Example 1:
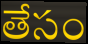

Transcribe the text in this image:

తేసం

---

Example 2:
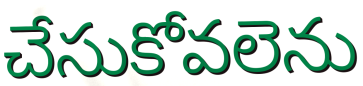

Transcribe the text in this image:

చేసుకోవలెను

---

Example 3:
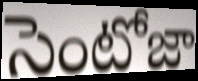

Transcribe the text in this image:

సెంటోజా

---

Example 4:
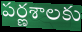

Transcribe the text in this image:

పర్ణశాలకు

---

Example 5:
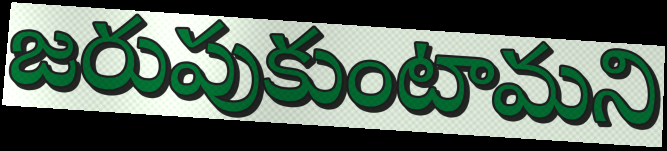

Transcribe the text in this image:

జరుపుకుంటామని